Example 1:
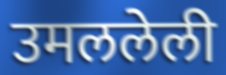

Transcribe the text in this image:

उमललेली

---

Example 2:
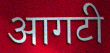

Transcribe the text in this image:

आगटी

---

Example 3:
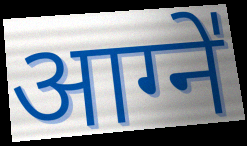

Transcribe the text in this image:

आग्ने॑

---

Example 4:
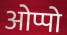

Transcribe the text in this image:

ओप्पो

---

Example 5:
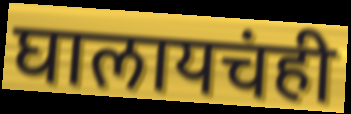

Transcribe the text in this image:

घालायचंही